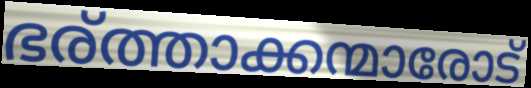
ഭര്ത്താക്കന്മാരോട്